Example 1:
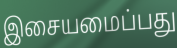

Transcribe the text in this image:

இசையமைப்பது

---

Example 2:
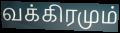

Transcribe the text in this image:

வக்கிரமும்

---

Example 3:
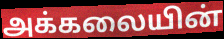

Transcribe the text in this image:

அக்கலையின்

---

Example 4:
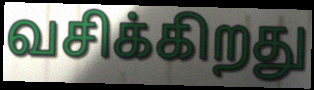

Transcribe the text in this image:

வசிக்கிறது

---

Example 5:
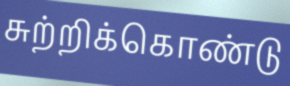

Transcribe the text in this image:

சுற்றிக்கொண்டு